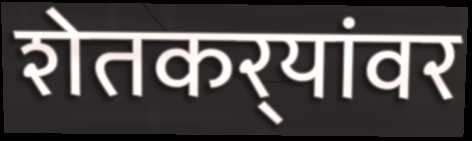
शेतकर्‍यांवर